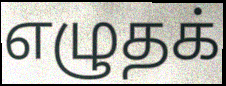
எழுதக்